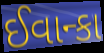
ઈવાન્કા